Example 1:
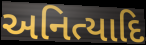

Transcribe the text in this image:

અનિત્યાદિ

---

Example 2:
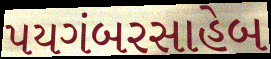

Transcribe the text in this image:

પયગંબરસાહેબ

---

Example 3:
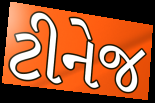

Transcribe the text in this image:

ટીનેજ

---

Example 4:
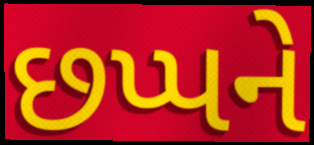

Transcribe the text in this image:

છપ્પને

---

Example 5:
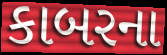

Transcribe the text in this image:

કાબરના